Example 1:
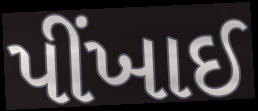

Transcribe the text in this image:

પીંખાઈ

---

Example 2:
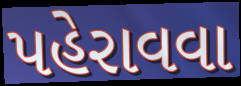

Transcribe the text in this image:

પહેરાવવા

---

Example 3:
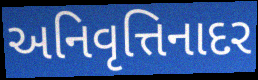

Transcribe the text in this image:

અનિવૃત્તિનાદર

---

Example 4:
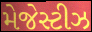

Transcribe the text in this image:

મેજેસ્ટીઝ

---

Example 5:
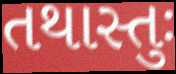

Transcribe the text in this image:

તથાસ્તુઃ